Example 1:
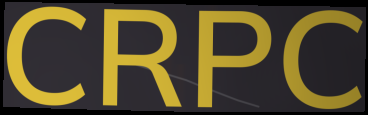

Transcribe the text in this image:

CRPC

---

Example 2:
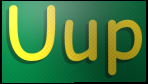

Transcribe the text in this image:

Uup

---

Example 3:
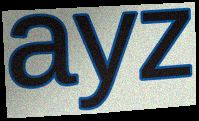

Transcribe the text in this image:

ayz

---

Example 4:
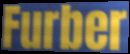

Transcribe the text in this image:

Furber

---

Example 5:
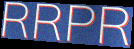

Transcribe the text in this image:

RRPR